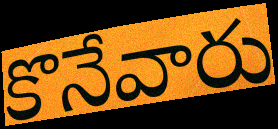
కొనేవారు